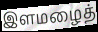
இளமழைத்